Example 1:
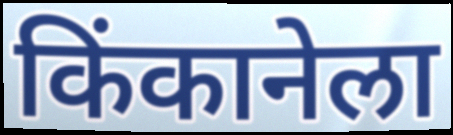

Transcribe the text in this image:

किंकानेला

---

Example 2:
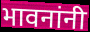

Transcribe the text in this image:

भावनांनी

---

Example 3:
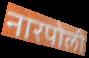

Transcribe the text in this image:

नारपोली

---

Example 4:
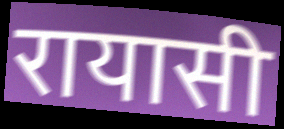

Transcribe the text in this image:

रायासी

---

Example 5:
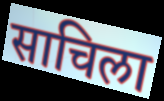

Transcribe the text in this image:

साचिला